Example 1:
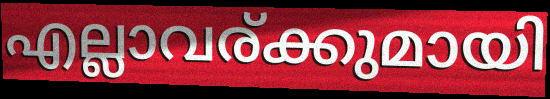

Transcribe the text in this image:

എല്ലാവര്ക്കുമായി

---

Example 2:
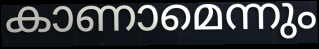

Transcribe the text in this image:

കാണാമെന്നും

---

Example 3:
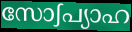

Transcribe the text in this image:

സോഽപ്യാഹ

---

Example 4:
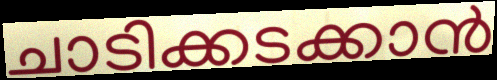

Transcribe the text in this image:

ചാടിക്കടക്കാൻ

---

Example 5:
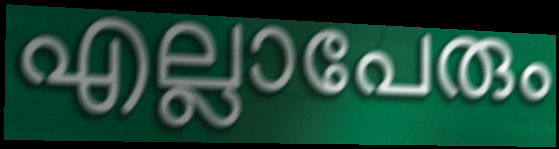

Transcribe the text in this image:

എല്ലാപേരും